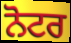
ਨੋਟਰ